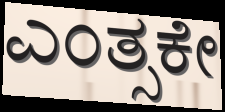
ಎಂತ್ಸಕೇ